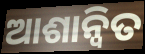
ଆଶାନ୍ବିତ